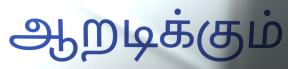
ஆறடிக்கும்